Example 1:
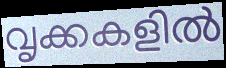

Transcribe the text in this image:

വൃക്കകളിൽ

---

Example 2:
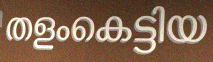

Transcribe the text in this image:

തളംകെട്ടിയ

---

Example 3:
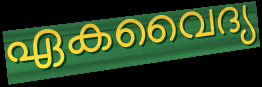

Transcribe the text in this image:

ഏകവൈദ്യ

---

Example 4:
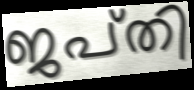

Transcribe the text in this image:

ജപ്‌തി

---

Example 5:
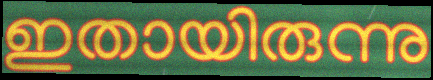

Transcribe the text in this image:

ഇതായിരുന്നു